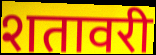
शतावरी